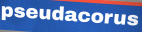
pseudacorus